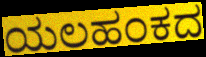
ಯಲಹಂಕದ